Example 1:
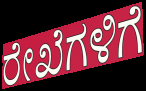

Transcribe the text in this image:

ರೇಖೆಗಳಿಗೆ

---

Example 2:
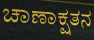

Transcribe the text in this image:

ಚಾಣಾಕ್ಷತನ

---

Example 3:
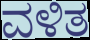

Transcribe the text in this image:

ವಳಿತ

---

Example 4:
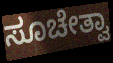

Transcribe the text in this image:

ಸೂಚೇತ್ವಾ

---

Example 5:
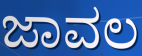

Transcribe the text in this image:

ಜಾವಲ